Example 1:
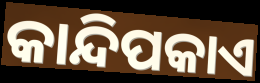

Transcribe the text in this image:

କାନ୍ଦିପକାଏ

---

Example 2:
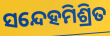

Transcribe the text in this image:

ସନ୍ଦେହମିଶ୍ରିତ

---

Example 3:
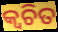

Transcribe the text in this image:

କ୍ବଚିତ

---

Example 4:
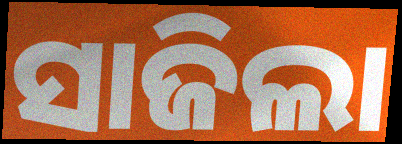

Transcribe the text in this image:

ସାଜିଲା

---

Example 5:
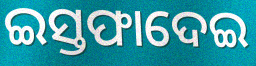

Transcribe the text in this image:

ଇସ୍ତଫାଦେଇ